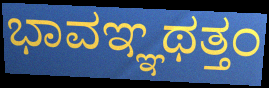
ಭಾವಞ್ಞಥತ್ತಂ